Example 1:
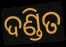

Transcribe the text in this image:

ଦଣ୍ଡିତ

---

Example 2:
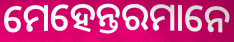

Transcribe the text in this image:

ମେହେନ୍ତରମାନେ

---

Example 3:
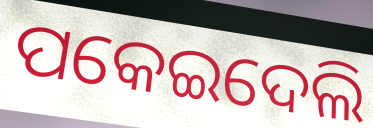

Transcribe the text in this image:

ପକେଇଦେଲି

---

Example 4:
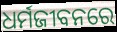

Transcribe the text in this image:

ଧର୍ମଜୀବନରେ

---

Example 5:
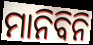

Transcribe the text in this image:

ମାନିବିନି